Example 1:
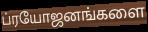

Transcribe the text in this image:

ப்ரயோஜனங்களை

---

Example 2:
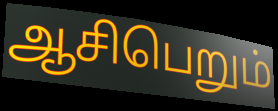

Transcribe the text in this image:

ஆசிபெறும்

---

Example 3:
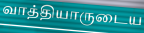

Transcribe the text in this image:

வாத்தியாருடைய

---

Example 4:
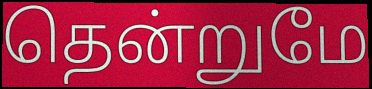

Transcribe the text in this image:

தென்றுமே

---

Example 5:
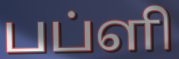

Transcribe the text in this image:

பப்ளி